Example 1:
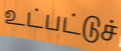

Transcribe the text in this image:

உட்பட்டுச்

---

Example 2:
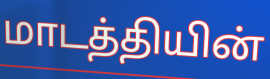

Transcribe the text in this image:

மாடத்தியின்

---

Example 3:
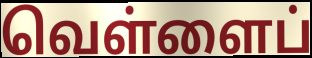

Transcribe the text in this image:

வெள்ளைப்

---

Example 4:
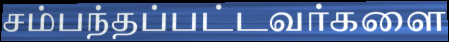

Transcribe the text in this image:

சம்பந்தப்பட்டவர்களை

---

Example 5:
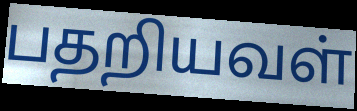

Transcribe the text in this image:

பதறியவள்